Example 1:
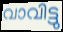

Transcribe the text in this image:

വാവിട്ടു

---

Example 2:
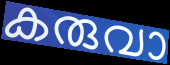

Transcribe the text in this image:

കരുവാ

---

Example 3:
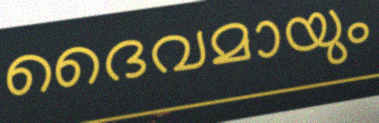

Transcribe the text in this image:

ദൈവമായും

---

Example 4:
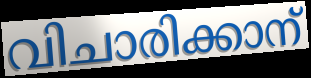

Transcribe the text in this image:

വിചാരിക്കാന്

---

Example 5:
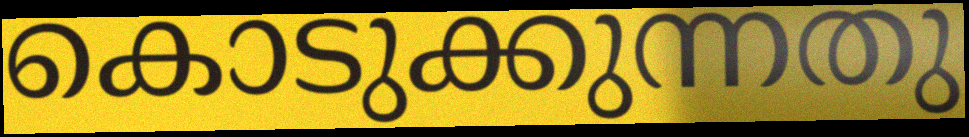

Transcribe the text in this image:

കൊടുക്കുന്നതു